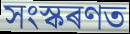
সংস্কৰণত